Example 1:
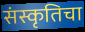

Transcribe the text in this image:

संस्कृतिचा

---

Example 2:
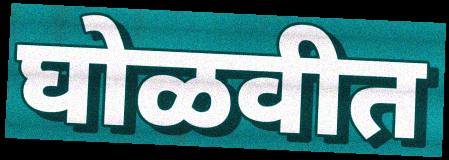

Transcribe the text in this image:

घोळवीत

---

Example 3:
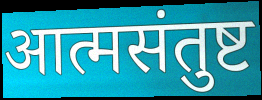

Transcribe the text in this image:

आत्मसंतुष्ट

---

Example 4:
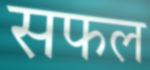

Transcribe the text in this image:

सफल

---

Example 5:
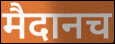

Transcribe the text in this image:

मैदानच